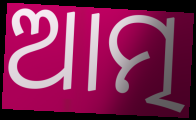
ଆତ୍ମ